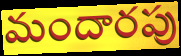
మందారపు